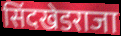
सिंदखेडराजा